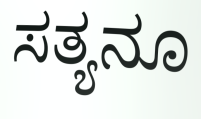
ಸತ್ಯನೂ